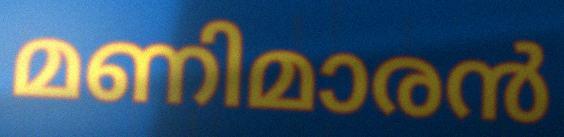
മണിമാരൻ